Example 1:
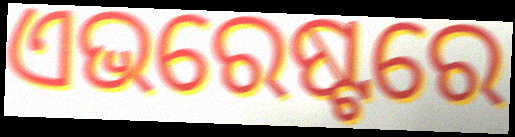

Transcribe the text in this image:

ଏଭରେଷ୍ଟରେ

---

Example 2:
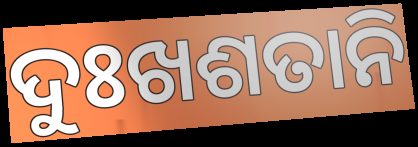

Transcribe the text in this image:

ଦୁଃଖଶତାନି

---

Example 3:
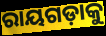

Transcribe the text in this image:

ରାୟଗଡ଼ାକୁ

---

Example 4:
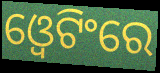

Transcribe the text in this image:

ଓ୍ୱେଟିଂରେ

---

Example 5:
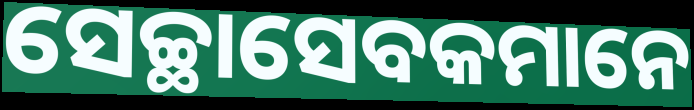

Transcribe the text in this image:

ସେଚ୍ଛାସେବକମାନେ